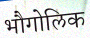
भौगोलिक